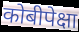
कोबीपेक्षा